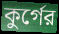
কুর্গের